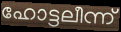
ഹോട്ടലീന്ന്